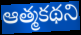
ఆత్మకథని